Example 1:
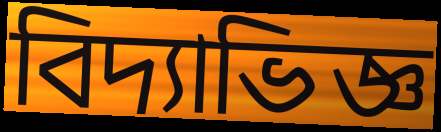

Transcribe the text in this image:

বিদ্যাভিজ্ঞ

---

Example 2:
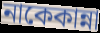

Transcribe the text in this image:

নাকেকান্না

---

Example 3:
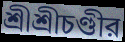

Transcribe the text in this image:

শ্রীশ্রীচণ্ডীর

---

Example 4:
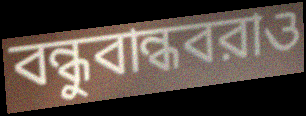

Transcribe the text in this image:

বন্ধুবান্ধবরাও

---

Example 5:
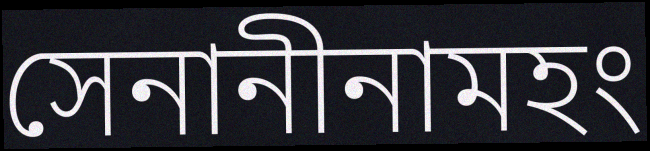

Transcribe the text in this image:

সেনানীনামহং